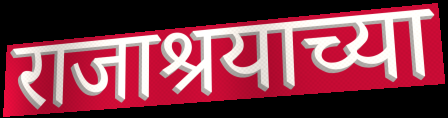
राजाश्रयाच्या